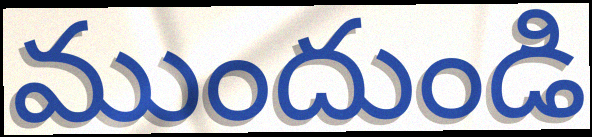
ముందుండి